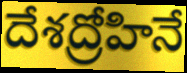
దేశద్రోహినే